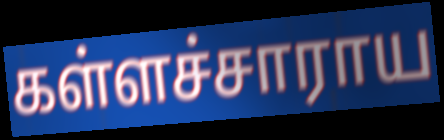
கள்ளச்சாராய